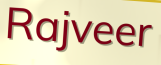
Rajveer